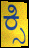
ಕ್ಸಿ